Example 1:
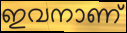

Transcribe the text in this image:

ഇവനാണ്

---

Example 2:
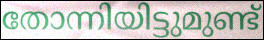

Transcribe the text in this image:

തോന്നിയിട്ടുമുണ്ട്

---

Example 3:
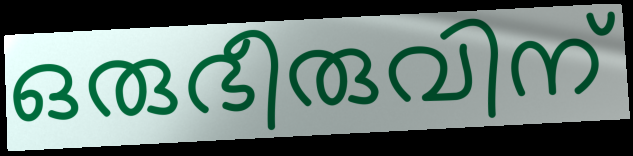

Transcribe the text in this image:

ഒരുഭീരുവിന്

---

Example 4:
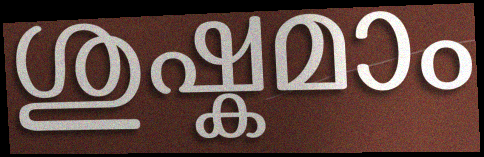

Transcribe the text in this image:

ശുഷ്കമാം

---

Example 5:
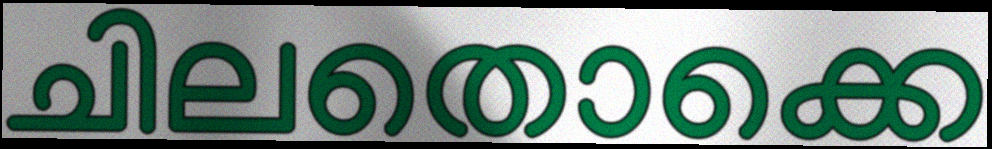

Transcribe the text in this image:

ചിലതൊക്കെ